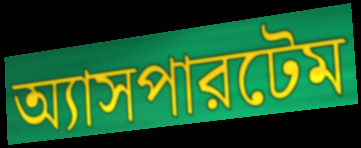
অ্যাসপারটেম